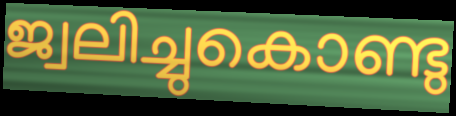
ജ്വലിച്ചുകൊണ്ടു